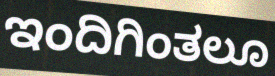
ಇಂದಿಗಿಂತಲೂ